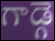
గాడ్గె